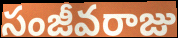
సంజీవరాజు